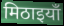
मिठाइयाँ